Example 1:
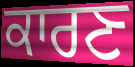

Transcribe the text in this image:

ਕਾਰਣ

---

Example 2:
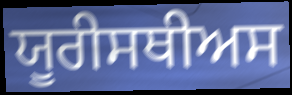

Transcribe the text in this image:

ਯੂਰੀਸਥੀਅਸ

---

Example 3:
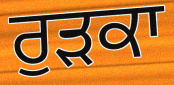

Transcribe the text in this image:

ਰੁੜਕਾ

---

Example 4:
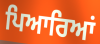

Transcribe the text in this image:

ਪਿਆਰਿਆਂ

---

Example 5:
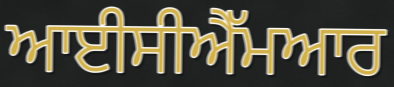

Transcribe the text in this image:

ਆਈਸੀਐੱਮਆਰ